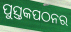
ପୁସ୍ତକପଠନର